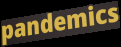
pandemics